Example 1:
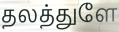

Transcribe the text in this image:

தலத்துளே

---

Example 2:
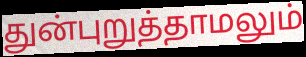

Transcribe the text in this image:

துன்புறுத்தாமலும்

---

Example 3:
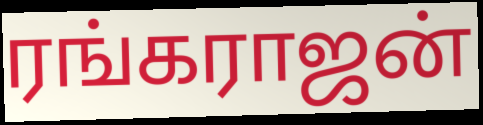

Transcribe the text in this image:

ரங்கராஜன்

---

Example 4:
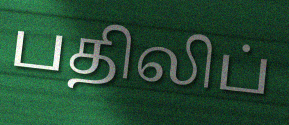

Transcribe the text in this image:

பதிலிப்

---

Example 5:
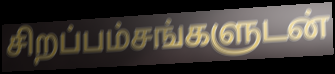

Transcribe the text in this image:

சிறப்பம்சங்களுடன்